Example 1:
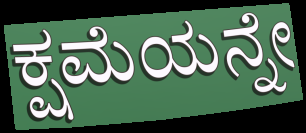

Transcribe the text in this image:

ಕ್ಷಮೆಯನ್ನೇ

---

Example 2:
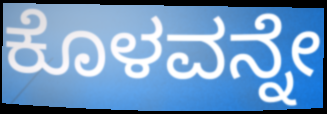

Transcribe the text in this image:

ಕೊಳವನ್ನೇ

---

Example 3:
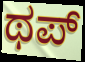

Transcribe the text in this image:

ಥಪ್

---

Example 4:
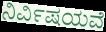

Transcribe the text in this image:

ನಿರ್ವಿಷಯವೆ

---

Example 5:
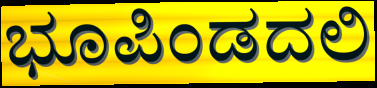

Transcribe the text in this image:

ಭೂಪಿಂಡದಲಿ